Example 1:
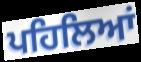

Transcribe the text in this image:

ਪਹਿਲਿਆਂ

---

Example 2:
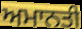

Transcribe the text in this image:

ਅਮਾਨਤੀ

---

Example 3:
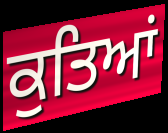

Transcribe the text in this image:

ਕੁਤਿਆਂ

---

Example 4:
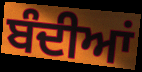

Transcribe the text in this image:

ਬੰਦੀਆਂ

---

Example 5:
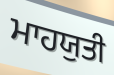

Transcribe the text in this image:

ਮਾਹਯੁਤੀ